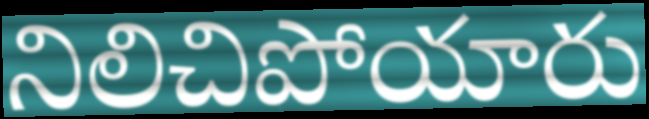
నిలిచిపోయారు